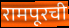
रामपूरची